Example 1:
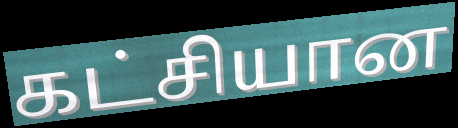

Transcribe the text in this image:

கட்சியான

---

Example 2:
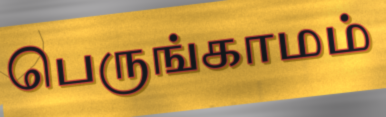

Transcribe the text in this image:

பெருங்காமம்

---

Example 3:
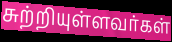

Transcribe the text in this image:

சுற்றியுள்ளவர்கள்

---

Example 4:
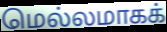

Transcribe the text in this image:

மெல்லமாகக்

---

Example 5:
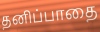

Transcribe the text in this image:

தனிப்பாதை